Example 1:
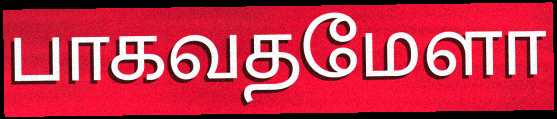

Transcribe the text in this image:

பாகவதமேளா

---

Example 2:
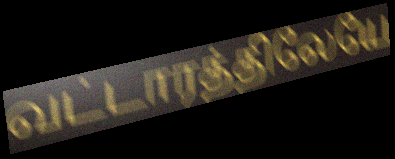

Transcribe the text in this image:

வட்டாரத்திலேயே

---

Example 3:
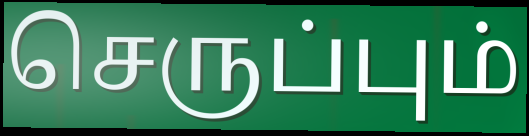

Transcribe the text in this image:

செருப்பும்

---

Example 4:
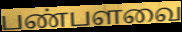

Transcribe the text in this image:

பண்பளவை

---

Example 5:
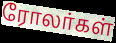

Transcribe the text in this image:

ரோலர்கள்